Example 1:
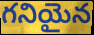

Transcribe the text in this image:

గనియైన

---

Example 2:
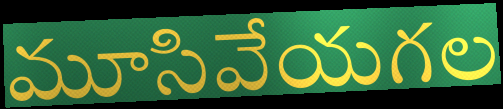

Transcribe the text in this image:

మూసివేయగల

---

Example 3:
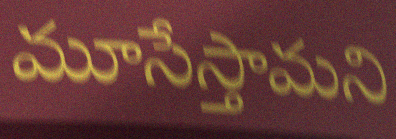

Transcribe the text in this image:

మూసేస్తామని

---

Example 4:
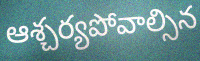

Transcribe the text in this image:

ఆశ్చర్యపోవాల్సిన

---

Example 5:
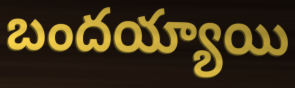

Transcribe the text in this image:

బందయ్యాయి